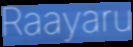
Raayaru